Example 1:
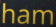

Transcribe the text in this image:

ham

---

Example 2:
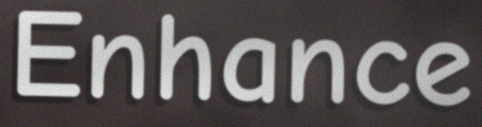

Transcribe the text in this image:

Enhance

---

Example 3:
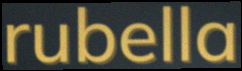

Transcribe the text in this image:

rubella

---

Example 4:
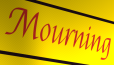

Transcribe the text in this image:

Mourning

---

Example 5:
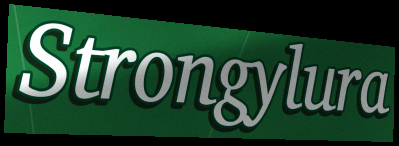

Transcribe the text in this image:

Strongylura